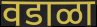
वडाळा